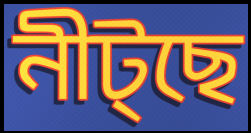
নীট্‌ছে